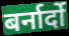
बर्नार्दो